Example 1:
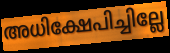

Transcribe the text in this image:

അധിക്ഷേപിച്ചില്ലേ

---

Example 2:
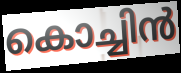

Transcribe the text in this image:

കൊച്ചിൻ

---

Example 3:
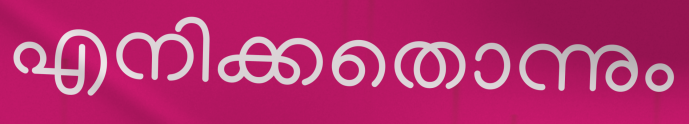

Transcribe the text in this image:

എനിക്കതൊന്നും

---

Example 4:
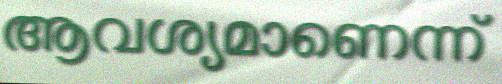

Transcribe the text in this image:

ആവശ്യമാണെന്ന്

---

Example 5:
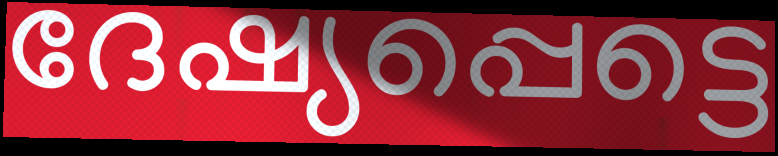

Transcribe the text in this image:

ദേഷ്യപ്പെട്ടെ